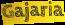
Gajaria